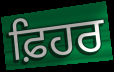
ਫ਼ਿਹਰ